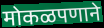
मोकळपणाने